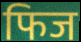
फिज